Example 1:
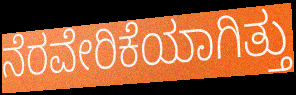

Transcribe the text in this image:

ನೆರವೇರಿಕೆಯಾಗಿತ್ತು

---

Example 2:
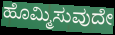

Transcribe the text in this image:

ಹೊಮ್ಮಿಸುವುದೇ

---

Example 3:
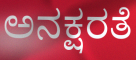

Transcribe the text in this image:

ಅನಕ್ಷರತೆ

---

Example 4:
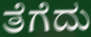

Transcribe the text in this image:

ತೆಗೆದು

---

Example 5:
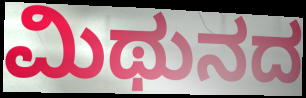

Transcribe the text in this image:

ಮಿಥುನದ